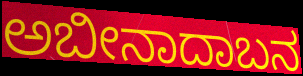
ಅಬೀನಾದಾಬನ